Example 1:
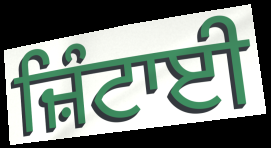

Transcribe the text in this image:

ਜ਼ਿੰਟਾਈ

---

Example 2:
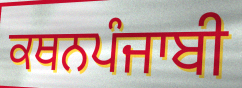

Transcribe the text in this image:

ਕਥਨਪੰਜਾਬੀ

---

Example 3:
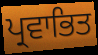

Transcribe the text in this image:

ਪ੍ਰਵਾਭਿਤ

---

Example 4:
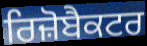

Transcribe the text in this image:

ਰਿਜ਼ੋਬੈਕਟਰ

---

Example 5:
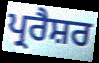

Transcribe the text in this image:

ਪ੍ਰਰੈਸ਼ਰ